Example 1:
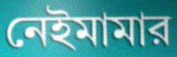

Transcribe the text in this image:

নেইমামার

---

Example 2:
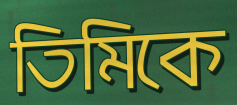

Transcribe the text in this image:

তিমিকে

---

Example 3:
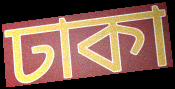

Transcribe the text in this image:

ঢাকা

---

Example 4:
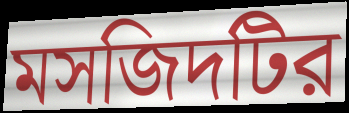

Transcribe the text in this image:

মসজিদটির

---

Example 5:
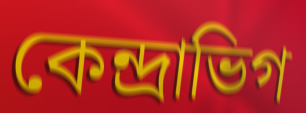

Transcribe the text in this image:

কেন্দ্রাভিগ